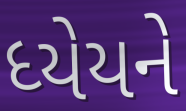
ધ્યેયને